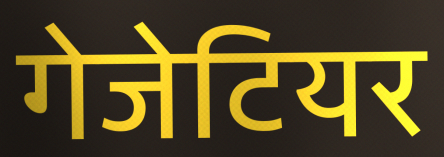
गेजेटियर